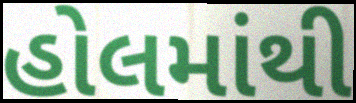
હોલમાંથી